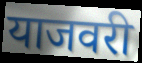
याजवरी